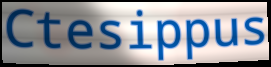
Ctesippus